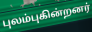
புலம்புகின்றனர்